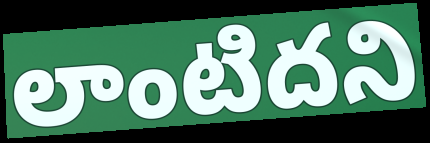
లాంటిదని